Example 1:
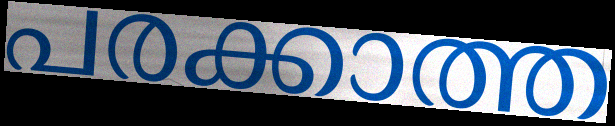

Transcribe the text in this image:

പരക്കാത്ത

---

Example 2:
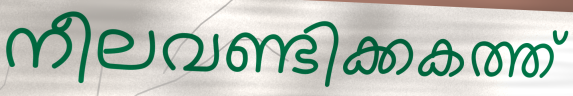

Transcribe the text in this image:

നീലവണ്ടിക്കകത്ത്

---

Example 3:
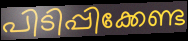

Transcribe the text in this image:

പിടിപ്പിക്കേണ്ട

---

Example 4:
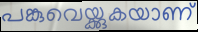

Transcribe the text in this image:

പങ്കുവെയ്ക്കുകയാണ്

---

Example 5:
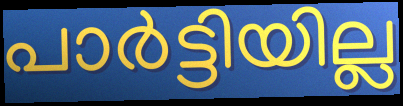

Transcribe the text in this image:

പാർട്ടിയില്ല